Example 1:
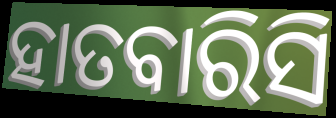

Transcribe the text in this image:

ହାତବାରିସି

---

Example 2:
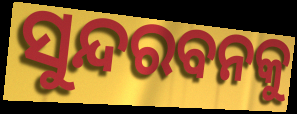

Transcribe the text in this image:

ସୁନ୍ଦରବନକୁ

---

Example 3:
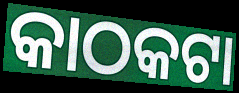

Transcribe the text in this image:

କାଠକଟା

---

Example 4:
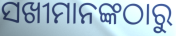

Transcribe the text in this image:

ସଖୀମାନଙ୍କଠାରୁ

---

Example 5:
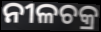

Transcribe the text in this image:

ନୀଳଚକ୍ର